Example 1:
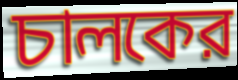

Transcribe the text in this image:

চালকের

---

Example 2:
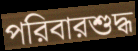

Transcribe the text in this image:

পরিবারশুদ্ধ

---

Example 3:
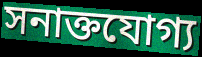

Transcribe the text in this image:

সনাক্তযোগ্য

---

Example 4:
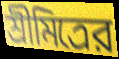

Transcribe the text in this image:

শ্রীমিত্রের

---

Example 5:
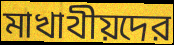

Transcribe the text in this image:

মাখাথীয়দের